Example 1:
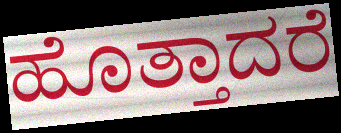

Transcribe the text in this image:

ಹೊತ್ತಾದರೆ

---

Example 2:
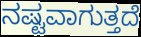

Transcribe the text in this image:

ನಷ್ಟವಾಗುತ್ತದೆ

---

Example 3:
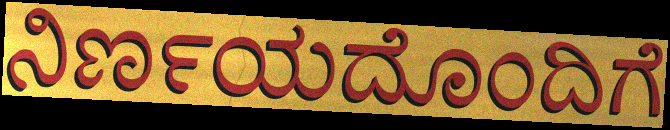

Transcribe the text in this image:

ನಿರ್ಣಯದೊಂದಿಗೆ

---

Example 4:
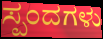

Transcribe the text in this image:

ಸ್ಪಂದಗಳು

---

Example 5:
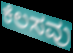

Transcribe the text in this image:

ಕೆಲಸವು